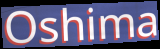
Oshima